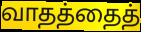
வாதத்தைத்